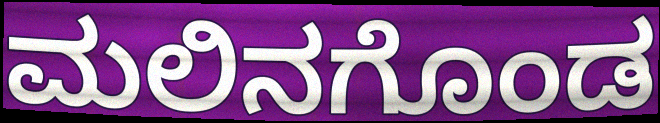
ಮಲಿನಗೊಂಡ